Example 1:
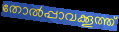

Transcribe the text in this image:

തോൽപ്പാവക്കൂത്ത്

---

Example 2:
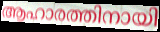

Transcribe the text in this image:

ആഹാരത്തിനായി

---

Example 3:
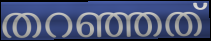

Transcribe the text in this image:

തറഞ്ഞത്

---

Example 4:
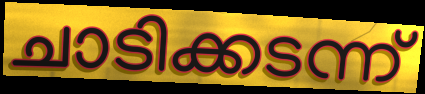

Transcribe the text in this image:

ചാടിക്കടന്ന്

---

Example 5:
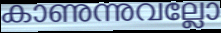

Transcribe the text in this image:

കാണുന്നുവല്ലോ